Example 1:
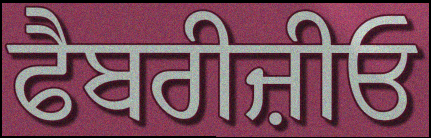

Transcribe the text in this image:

ਫੈਬਰੀਜ਼ੀਓ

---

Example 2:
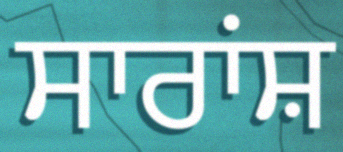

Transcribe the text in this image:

ਸਾਰਾਂਸ਼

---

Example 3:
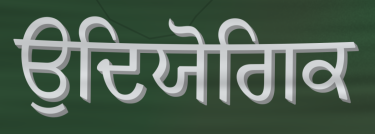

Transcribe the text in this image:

ਉਦਿਯੋਗਿਕ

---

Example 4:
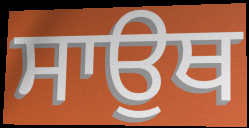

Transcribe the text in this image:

ਸਾਉਥ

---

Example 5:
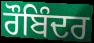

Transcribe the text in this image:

ਰੌਬਿੰਦਰ